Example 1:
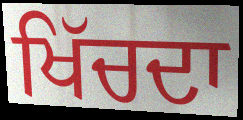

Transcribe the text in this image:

ਖਿੱਚਦਾ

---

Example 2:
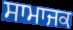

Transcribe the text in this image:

ਸਾਮਾਜਕ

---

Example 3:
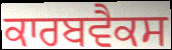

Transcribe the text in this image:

ਕਾਰਬਵੈਕਸ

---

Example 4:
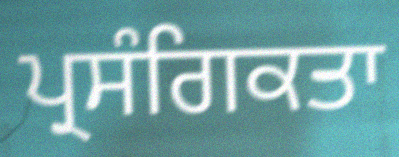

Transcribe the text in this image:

ਪ੍ਰਸੰਗਿਕਤਾ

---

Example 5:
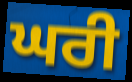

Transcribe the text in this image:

ਘਰੀ